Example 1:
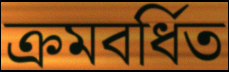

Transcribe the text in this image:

ক্ৰমবৰ্ধিত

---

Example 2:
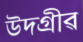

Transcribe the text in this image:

উদগ্ৰীৱ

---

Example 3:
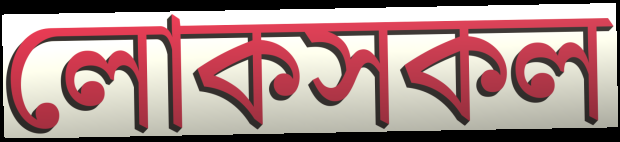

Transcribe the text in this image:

লোকসকল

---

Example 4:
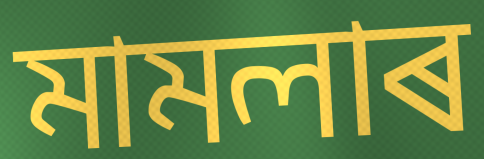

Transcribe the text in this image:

মামলাৰ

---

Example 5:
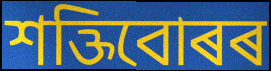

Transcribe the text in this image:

শক্তিবোৰৰ